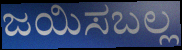
ಜಯಿಸಬಲ್ಲ